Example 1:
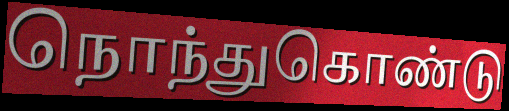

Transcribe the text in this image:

நொந்துகொண்டு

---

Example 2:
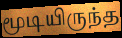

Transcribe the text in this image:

மூடியிருந்த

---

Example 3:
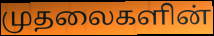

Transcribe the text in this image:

முதலைகளின்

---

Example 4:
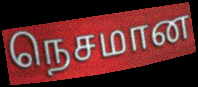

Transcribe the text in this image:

நெசமான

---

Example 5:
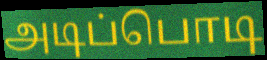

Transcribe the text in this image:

அடிப்பொடி